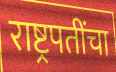
राष्ट्रपतींचा